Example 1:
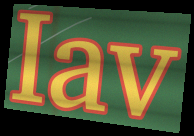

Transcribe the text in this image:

Iav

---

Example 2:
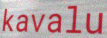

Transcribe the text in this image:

kavalu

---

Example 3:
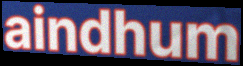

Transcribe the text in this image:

aindhum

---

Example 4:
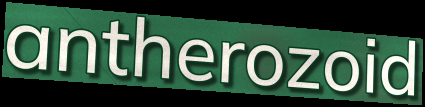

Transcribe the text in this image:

antherozoid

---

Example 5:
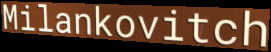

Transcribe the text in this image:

Milankovitch